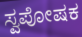
ಸ್ವಪೋಷಕ